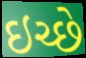
ઇચ્છે